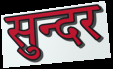
सुन्दर